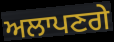
ਅਲਾਪਣਗੇ